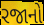
રજાનો